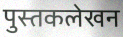
पुस्तकलेखन